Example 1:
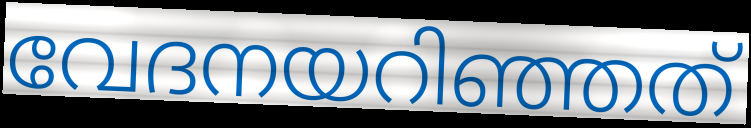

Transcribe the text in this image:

വേദനയറിഞ്ഞത്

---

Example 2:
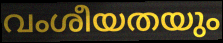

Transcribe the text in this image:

വംശീയതയും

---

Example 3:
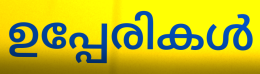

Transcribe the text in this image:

ഉപ്പേരികൾ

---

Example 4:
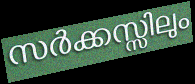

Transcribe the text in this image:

സർക്കസ്സിലും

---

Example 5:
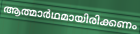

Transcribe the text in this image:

ആത്മാർഥമായിരിക്കണം